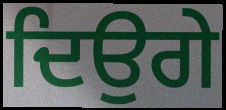
ਦਿਉਗੇ